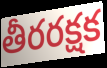
తీరరక్షక